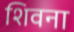
शिवना